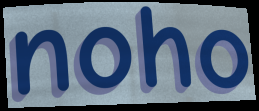
noho